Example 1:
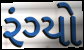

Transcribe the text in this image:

રંગ્યો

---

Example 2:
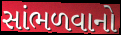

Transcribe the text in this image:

સાંભળવાનો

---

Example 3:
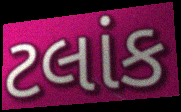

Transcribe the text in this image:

ટલાંક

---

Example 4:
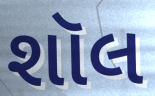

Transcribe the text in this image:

શૉલ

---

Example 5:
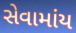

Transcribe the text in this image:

સેવામાંય